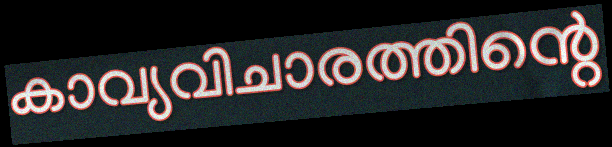
കാവ്യവിചാരത്തിന്റെ